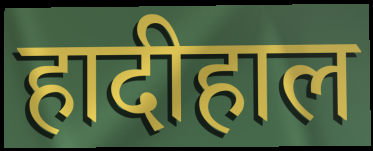
हादीहाल